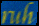
ruh